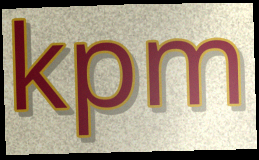
kpm